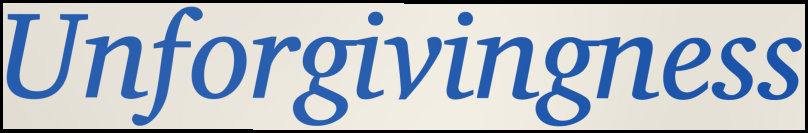
Unforgivingness